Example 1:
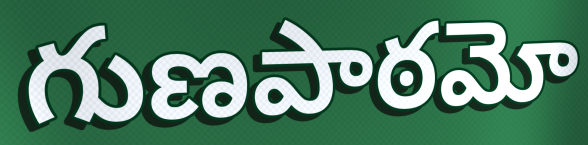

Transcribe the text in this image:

గుణపాఠమో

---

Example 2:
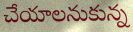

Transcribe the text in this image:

చేయాలనుకున్న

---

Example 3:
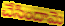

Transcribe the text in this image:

చేసిందామె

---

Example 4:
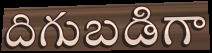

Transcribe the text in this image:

దిగుబడిగా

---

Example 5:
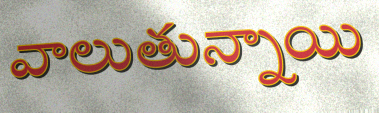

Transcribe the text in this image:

వాలుతున్నాయి